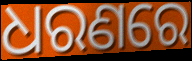
ଧରଣରେ